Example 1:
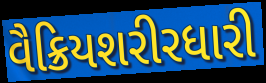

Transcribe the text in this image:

વૈક્રિયશરીરધારી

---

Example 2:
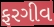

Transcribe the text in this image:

ફરગીવ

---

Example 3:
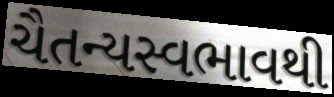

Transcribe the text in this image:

ચૈતન્યસ્વભાવથી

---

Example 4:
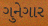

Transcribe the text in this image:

ગુનેગાર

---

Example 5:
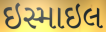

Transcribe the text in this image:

ઇસ્માઇલ